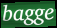
bagge